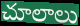
చూలాలు